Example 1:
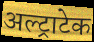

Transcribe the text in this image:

अल्ट्राटेक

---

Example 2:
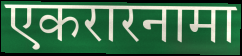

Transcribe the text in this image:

एकरारनामा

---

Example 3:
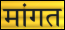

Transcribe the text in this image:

मांगत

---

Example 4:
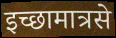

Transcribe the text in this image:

इच्छामात्रसे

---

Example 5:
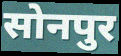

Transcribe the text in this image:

सोनपुर